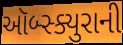
ઑબ્સ્ક્યુરાની